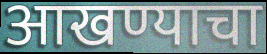
आखण्याचा